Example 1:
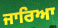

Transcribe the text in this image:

ਜਾਰਿਆ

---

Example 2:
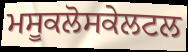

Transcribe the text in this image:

ਮਸੂਕਲੋਸਕੇਲਟਲ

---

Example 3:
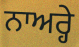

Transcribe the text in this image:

ਨਾਅਰ੍ਹੇ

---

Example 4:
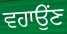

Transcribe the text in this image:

ਵਹਾਉਂਣ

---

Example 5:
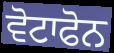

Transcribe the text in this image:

ਵੋਟਾਫੋਨ